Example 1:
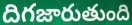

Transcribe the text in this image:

దిగజారుతుంది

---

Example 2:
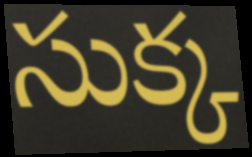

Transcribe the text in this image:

సుక్క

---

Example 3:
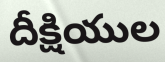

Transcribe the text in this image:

దీక్షియుల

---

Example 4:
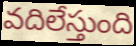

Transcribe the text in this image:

వదిలేస్తుంది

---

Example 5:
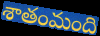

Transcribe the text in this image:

శాతంమంది